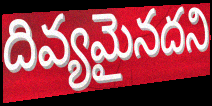
దివ్యమైనదని